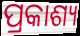
ପ୍ରକାଶ୍ୟ